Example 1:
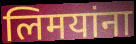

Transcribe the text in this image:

लिमयांना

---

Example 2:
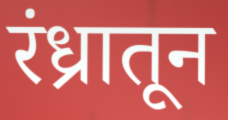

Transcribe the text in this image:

रंध्रातून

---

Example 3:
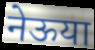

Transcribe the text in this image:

नेऊया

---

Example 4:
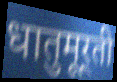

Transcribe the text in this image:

धातुमूर्ती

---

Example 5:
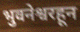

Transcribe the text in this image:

भुवनेश्वरहून